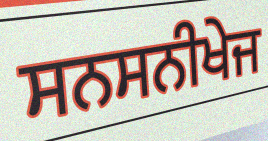
ਸਨਸਨੀਖੇਜ